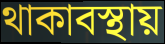
থাকাবস্থায়